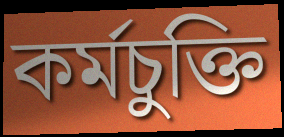
কর্মচুক্তি